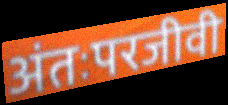
अंतःपरजीवी